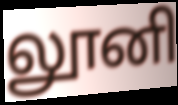
லூனி